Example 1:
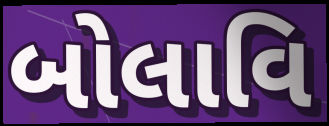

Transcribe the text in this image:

બોલાવિ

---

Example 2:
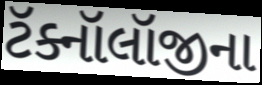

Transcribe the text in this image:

ટૅક્નૉલૉજીના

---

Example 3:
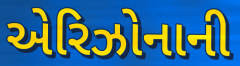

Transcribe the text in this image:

એરિઝોનાની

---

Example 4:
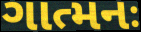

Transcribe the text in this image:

ગાત્મનઃ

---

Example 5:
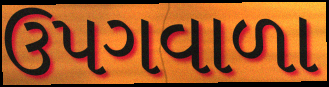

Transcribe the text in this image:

ઉપગવાળા